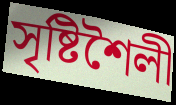
সৃষ্টিশৈলী